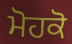
ਮੋਹਕੋ